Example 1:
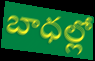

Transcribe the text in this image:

బాధల్లో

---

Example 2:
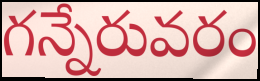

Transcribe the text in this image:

గన్నేరువరం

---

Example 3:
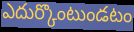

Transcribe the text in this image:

ఎదుర్కొంటుండటం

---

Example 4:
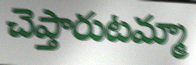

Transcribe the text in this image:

చెప్తారుటమ్మా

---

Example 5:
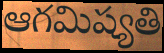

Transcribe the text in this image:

ఆగమిష్యతి